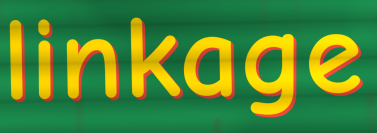
linkage